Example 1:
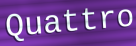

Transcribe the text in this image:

Quattro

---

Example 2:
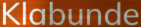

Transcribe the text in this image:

Klabunde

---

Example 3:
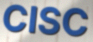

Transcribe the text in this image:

CISC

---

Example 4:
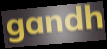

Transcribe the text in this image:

gandh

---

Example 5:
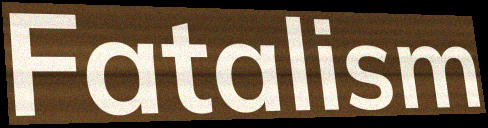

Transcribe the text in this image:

Fatalism